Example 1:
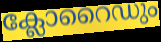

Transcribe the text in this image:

ക്ലോറൈഡും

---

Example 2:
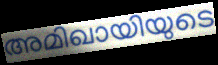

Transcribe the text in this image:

അമിഖായിയുടെ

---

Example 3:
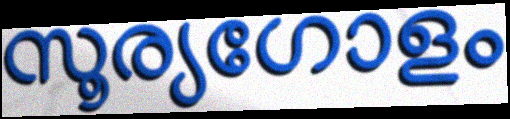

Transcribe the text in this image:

സൂര്യഗോളം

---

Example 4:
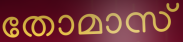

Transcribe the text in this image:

തോമാസ്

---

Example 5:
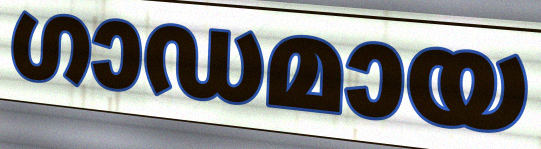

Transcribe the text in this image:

ഗാഡമായ